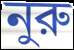
নুরু